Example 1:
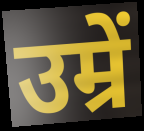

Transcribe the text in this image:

उम्रें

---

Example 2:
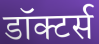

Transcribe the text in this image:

डॉक्टर्स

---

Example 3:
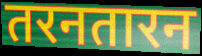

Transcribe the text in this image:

तरनतारन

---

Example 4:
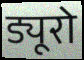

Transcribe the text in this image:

ड्यूरो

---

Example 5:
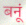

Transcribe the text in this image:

बनूं